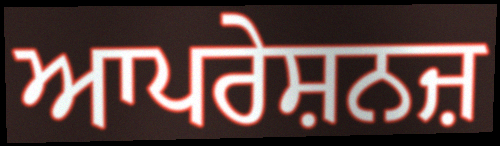
ਆਪਰੇਸ਼ਨਜ਼